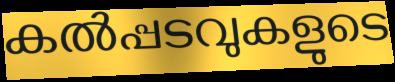
കൽപ്പടവുകളുടെ